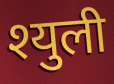
श्युली